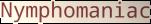
Nymphomaniac